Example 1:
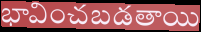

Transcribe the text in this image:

భావించబడతాయి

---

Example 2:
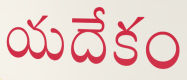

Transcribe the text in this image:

యదేకం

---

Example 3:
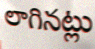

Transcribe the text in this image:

లాగినట్లు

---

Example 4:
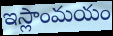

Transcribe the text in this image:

ఇస్లాంమయం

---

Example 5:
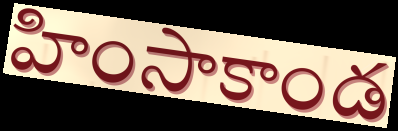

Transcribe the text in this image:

హింసాకాండ